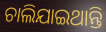
ଚାଲିଯାଇଥାନ୍ତି